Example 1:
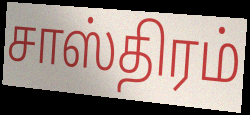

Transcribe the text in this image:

சாஸ்திரம்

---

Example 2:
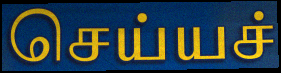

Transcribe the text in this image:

செய்யச்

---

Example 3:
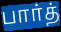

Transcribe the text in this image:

பார்த்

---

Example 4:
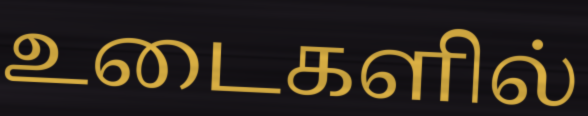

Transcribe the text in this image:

உடைகளில்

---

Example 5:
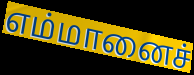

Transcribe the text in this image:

எம்மானைச்